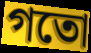
গতো